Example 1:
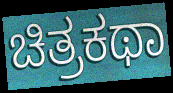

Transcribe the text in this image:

ಚಿತ್ರಕಥಾ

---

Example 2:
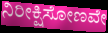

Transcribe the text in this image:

ನಿರೀಕ್ಷಿಸೋಣವೇ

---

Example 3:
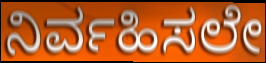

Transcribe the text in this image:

ನಿರ್ವಹಿಸಲೇ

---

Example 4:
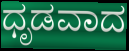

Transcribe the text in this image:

ಧೃಡವಾದ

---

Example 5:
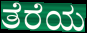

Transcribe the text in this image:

ತೆರೆಯ